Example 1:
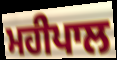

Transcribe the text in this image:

ਮਹੀਪਾਲ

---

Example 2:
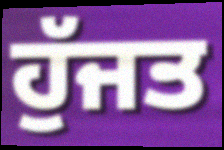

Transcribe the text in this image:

ਹੁੱਜਤ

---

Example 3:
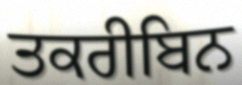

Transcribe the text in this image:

ਤਕਰੀਬਿਨ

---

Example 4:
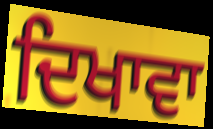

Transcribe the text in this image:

ਦਿਖਾਵਾ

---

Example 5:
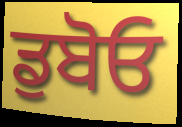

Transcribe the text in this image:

ਡੁਬੋਓ